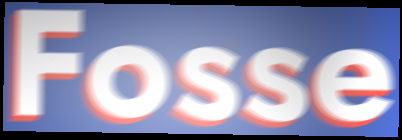
Fosse